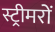
स्ट्रीमरों